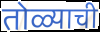
तोळ्याची